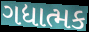
ગદ્યાત્મક